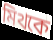
মিথকে